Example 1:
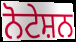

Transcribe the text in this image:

ਨੋਟੇਸ਼ਨ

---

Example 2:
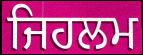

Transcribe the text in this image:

ਜਿਹਲਮ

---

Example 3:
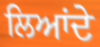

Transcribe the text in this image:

ਲਿਆਂਦੇ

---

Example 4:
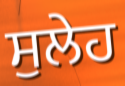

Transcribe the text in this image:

ਸੁਲੇਹ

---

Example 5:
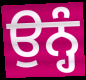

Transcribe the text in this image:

ਉਨ੍ਹੰ